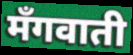
मँगवाती